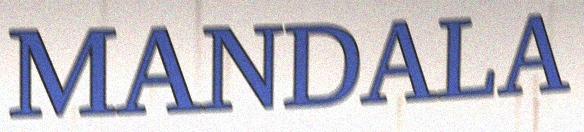
MANDALA